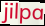
jilpa